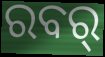
ରବର୍